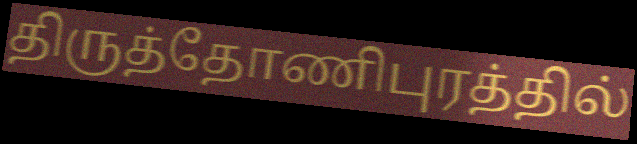
திருத்தோணிபுரத்தில்